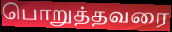
பொறுத்தவரை